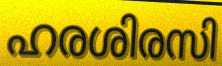
ഹരശിരസി